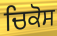
ਚਿਕੋਸ